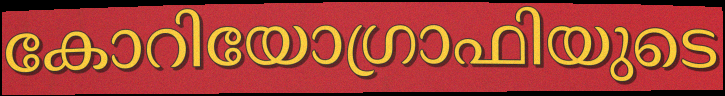
കോറിയോഗ്രാഫിയുടെ